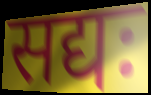
सद्यः